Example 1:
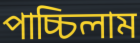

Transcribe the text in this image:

পাচ্চিলাম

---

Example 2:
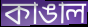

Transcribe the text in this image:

কাঙাল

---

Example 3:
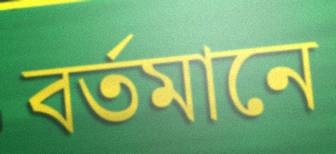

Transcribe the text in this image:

বর্তমানে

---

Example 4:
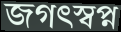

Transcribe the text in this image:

জগৎস্বপ্ন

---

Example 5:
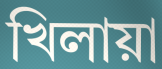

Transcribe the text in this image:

খিলায়া